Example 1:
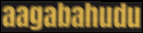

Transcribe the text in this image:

aagabahudu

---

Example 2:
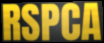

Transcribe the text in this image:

RSPCA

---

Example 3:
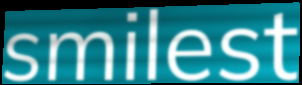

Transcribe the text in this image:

smilest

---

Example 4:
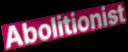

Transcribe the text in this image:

Abolitionist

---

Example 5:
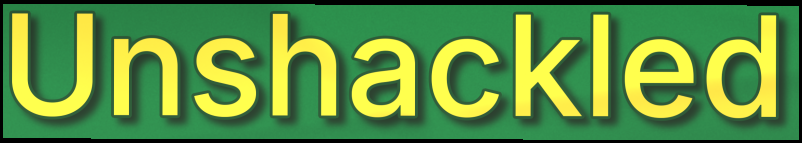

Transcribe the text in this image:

Unshackled